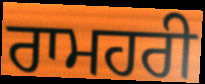
ਰਾਮਹਰੀ